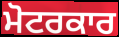
ਮੋਟਰਕਾਰ